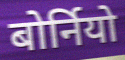
बोर्नियो